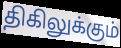
திகிலுக்கும்